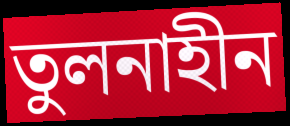
তুলনাহীন